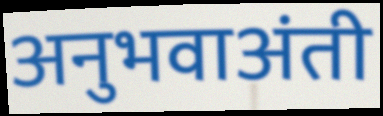
अनुभवाअंती